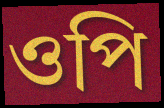
ওপি